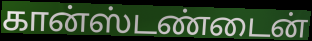
கான்ஸ்டண்டைன்